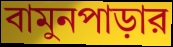
বামুনপাড়ার